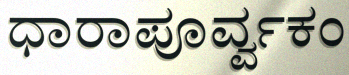
ಧಾರಾಪೂರ್ವ್ವಕಂ